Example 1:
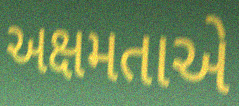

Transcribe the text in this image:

અક્ષમતાએ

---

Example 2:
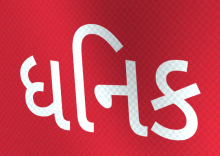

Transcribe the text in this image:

ધનિક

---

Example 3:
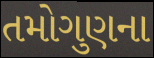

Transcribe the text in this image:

તમોગુણના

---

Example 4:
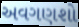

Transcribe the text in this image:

અવગણશો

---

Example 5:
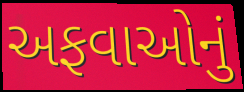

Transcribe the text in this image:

અફવાઓનું